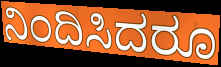
ನಿಂದಿಸಿದರೂ